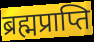
ब्रह्मप्राप्ति